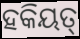
ହକିୟତ୍